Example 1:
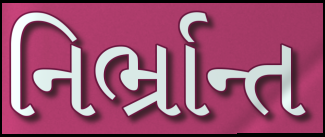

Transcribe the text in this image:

નિર્ભ્રાન્ત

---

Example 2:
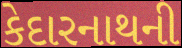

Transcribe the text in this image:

કેદારનાથની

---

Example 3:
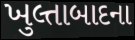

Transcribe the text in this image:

ખુલ્તાબાદના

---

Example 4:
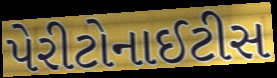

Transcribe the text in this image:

પેરીટોનાઈટીસ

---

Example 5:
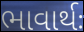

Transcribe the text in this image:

ભાવાર્થઃ